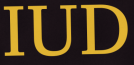
IUD